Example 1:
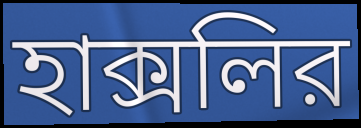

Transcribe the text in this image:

হাক্সলির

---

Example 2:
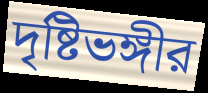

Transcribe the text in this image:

দৃষ্টিভঙ্গীর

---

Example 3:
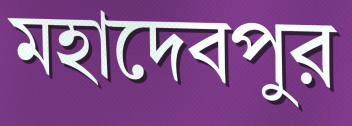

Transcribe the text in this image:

মহাদেবপুর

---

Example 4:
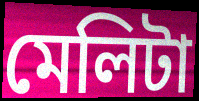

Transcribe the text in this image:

মেলিটা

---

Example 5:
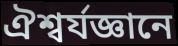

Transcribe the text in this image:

ঐশ্বর্যজ্ঞানে